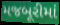
મજબૂરીમાં